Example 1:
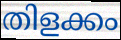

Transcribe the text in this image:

തിളക്കം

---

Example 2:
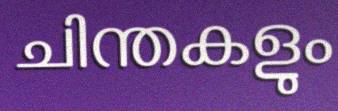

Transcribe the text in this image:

ചിന്തകളും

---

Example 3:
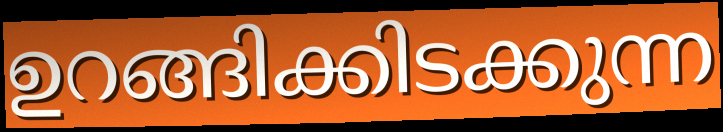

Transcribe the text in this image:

ഉറങ്ങിക്കിടക്കുന്ന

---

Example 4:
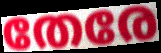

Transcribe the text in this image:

തേരേ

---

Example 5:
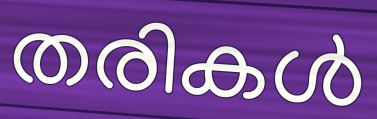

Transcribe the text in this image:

തരികൾ